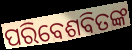
ପରିବେଶବିତଙ୍କ